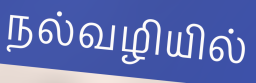
நல்வழியில்